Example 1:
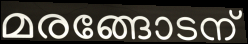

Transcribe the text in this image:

മരങ്ങോടന്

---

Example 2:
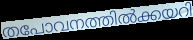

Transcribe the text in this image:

തപോവനത്തിൽക്കയറി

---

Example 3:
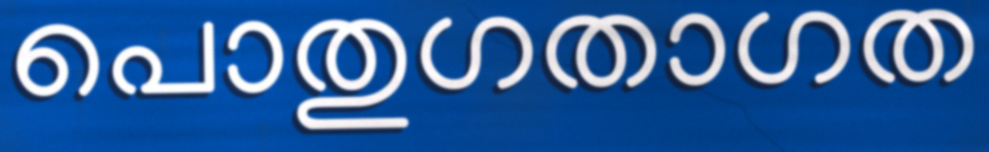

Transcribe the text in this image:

പൊതുഗതാഗത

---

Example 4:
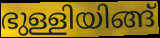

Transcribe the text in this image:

ഭുള്ളിയിങ്ങ്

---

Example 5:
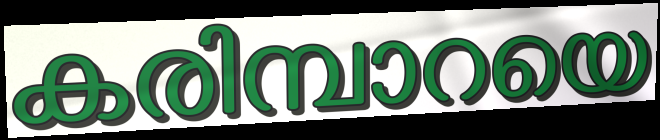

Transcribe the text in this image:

കരിമ്പാറയെ